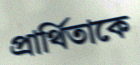
প্রার্থিতাকে